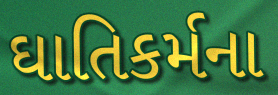
ઘાતિકર્મના